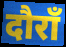
दौराँ